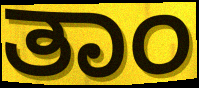
ತಾಂ